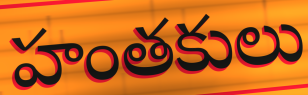
హంతకులు